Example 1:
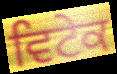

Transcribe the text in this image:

ਵਿਟੇਕ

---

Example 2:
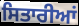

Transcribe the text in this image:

ਸਿਤਾਰੀਆਂ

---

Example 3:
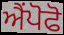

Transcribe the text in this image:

ਐਂਪੋਫੋ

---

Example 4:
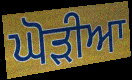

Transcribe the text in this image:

ਘੋੜੀਆ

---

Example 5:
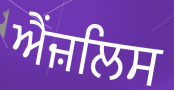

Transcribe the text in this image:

ਐਂਜ਼ਲਿਸ